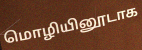
மொழியினூடாக